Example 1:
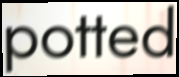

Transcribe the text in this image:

potted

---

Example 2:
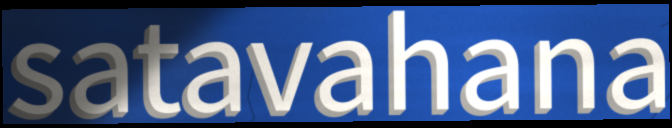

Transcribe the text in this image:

satavahana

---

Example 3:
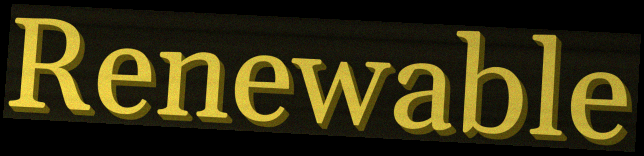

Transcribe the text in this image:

Renewable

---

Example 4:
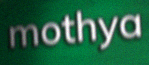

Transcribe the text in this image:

mothya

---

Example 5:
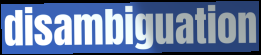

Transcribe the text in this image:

disambiguation